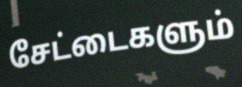
சேட்டைகளும்